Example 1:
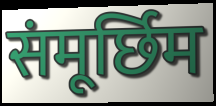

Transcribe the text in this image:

संमूर्छिम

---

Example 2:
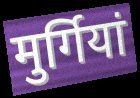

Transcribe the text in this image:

मुर्गियां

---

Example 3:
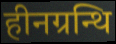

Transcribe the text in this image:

हीनग्रन्थि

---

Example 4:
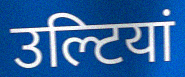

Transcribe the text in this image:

उल्‍टियां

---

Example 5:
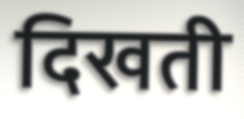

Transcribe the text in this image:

दिखती